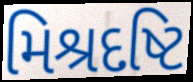
મિશ્રદષ્ટિ